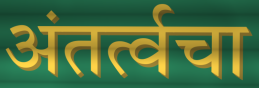
अंतर्त्वचा